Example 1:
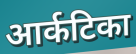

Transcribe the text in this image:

आर्कटिका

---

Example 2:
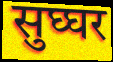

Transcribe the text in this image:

सुघ्घर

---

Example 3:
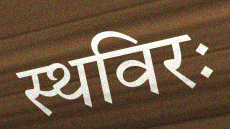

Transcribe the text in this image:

स्थविरः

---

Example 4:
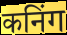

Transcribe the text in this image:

कनिंग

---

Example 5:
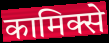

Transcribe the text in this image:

कामिक्से